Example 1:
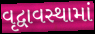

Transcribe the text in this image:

વૃદ્વાવસ્થામાં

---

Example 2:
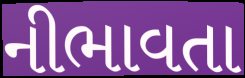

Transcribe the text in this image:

નીભાવતા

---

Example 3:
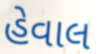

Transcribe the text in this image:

હેવાલ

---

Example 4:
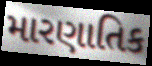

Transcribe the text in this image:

મારણાતિક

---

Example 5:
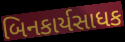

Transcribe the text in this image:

બિનકાર્યસાધક